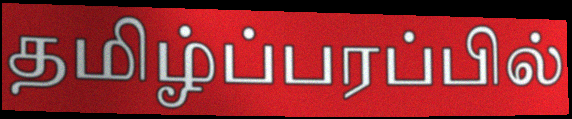
தமிழ்ப்பரப்பில்